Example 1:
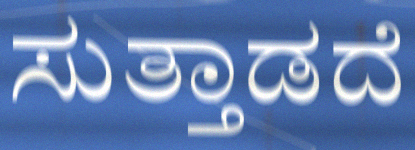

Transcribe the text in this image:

ಸುತ್ತಾಡದೆ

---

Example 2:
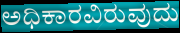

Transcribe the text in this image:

ಅಧಿಕಾರವಿರುವುದು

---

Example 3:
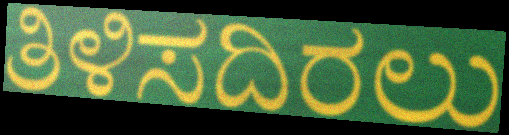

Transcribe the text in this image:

ತಿಳಿಸದಿರಲು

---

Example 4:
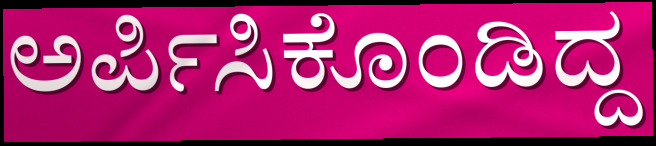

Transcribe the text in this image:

ಅರ್ಪಿಸಿಕೊಂಡಿದ್ದ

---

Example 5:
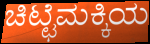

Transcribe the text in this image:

ಚಿಟ್ಟೆಮಕ್ಕಿಯ